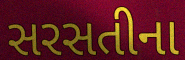
સરસતીના